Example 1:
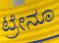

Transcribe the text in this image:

ಟ್ರೇನೂ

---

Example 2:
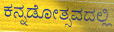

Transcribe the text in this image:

ಕನ್ನಡೋತ್ಸವದಲ್ಲಿ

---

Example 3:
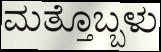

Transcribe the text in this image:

ಮತ್ತೊಬ್ಬಳು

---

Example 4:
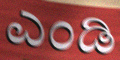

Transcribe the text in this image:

ಎಂಡಿ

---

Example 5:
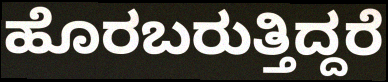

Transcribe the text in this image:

ಹೊರಬರುತ್ತಿದ್ದರೆ